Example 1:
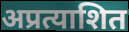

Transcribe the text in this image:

अप्रत्याशित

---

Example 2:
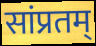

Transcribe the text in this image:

सांप्रतम्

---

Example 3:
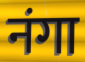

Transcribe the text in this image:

नंगा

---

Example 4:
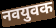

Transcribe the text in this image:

नवयुवक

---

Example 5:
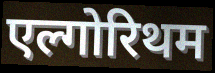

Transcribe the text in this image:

एल्गोरिथम